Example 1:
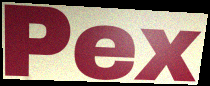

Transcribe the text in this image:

Pex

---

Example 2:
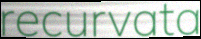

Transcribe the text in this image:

recurvata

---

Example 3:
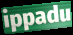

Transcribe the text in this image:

ippadu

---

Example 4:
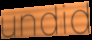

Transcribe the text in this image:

undid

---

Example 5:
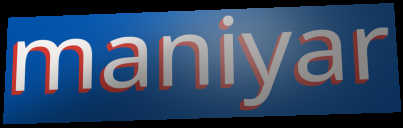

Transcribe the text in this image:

maniyar